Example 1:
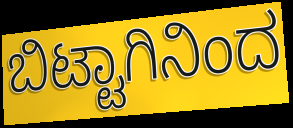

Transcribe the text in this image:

ಬಿಟ್ಟಾಗಿನಿಂದ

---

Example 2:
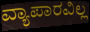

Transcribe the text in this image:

ವ್ಯಾಪಾರವಿಲ್ಲ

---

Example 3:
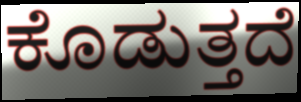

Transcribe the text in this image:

ಕೊಡುತ್ತದೆ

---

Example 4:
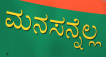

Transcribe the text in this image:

ಮನಸನ್ನೆಲ್ಲ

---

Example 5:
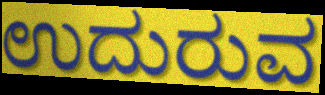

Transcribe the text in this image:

ಉದುರುವ